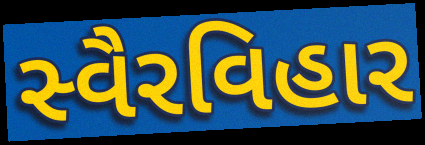
સ્વૈરવિહાર